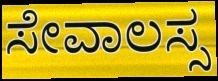
ಸೇವಾಲಸ್ಸ